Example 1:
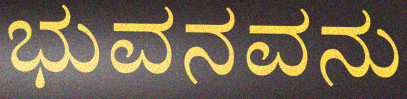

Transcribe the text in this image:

ಭುವನವನು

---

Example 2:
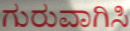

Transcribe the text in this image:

ಗುರುವಾಗಿಸಿ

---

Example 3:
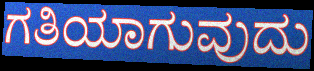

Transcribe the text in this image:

ಗತಿಯಾಗುವುದು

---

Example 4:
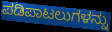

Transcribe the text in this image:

ಪಡಿಪಾಟಲುಗಳನ್ನು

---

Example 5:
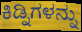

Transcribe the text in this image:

ಕಿಡ್ನಿಗಳನ್ನು